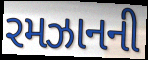
રમઝાનની